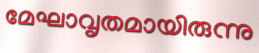
മേഘാവൃതമായിരുന്നു